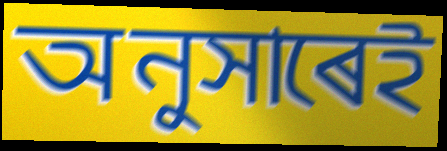
অনুসাৰেই